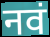
नवं